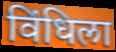
विंधिला